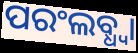
ପରଂଲବ୍ଧ୍ଵା